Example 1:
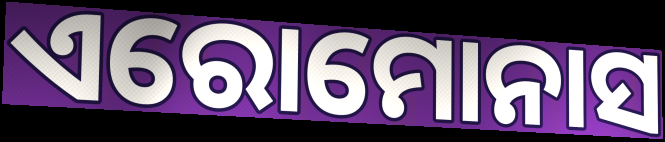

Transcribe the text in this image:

ଏରୋମୋନାସ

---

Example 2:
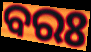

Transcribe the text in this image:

ବରଃ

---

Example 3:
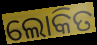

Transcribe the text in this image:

ଲୋକିତ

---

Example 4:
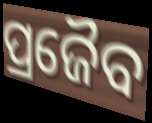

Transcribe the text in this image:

ପ୍ରଜୈବ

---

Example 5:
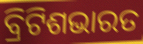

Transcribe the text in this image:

ବ୍ରିଟିଶଭାରତ